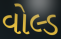
વોલ્ડ